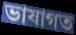
ভাষাগত